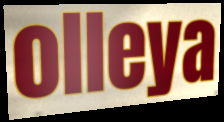
olleya